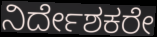
ನಿರ್ದೇಶಕರೇ